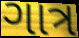
ગાત્ર